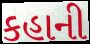
કહાની